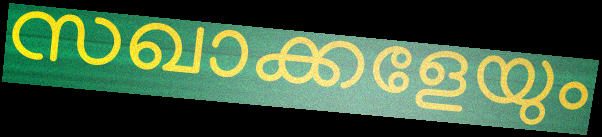
സഖാക്കളേയും